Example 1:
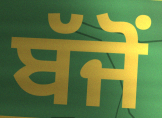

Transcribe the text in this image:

ਬੱਜੋਂ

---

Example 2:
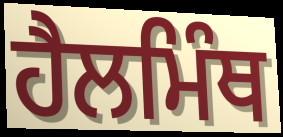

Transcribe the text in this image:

ਹੈਲਮਿੰਥ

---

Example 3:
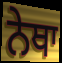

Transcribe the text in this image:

ਨੇਥਾ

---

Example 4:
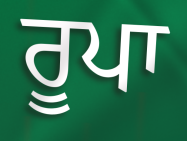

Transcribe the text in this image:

ਰੂਪਾ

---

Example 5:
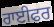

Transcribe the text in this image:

ਰਾਈਫਰ